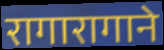
रागारागाने